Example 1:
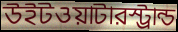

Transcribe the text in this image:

উইটওয়াটারস্ট্রান্ড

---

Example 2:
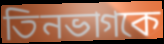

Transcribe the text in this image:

তিনভাগকে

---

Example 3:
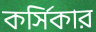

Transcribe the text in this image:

কর্সিকার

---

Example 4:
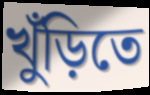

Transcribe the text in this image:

খুঁড়িতে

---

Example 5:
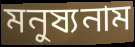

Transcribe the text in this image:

মনুষ্যনাম